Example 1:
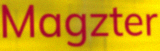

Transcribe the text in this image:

Magzter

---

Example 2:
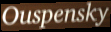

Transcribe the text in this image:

Ouspensky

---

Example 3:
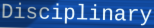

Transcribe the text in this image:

Disciplinary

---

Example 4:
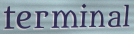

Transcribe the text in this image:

terminal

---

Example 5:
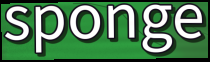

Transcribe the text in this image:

sponge